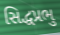
સિદ્ધપ્રભુ